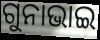
ଗୁନାଭାଇ